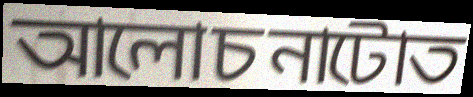
আলোচনাটোত